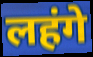
लहंगे